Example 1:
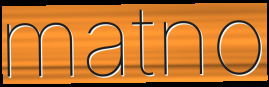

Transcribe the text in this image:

matno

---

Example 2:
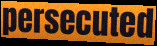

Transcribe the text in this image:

persecuted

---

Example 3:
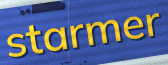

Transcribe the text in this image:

starmer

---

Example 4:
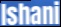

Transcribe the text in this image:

Ishani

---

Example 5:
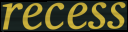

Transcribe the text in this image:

recess